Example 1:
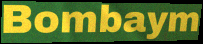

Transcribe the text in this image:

Bombaym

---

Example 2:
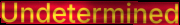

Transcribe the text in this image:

Undetermined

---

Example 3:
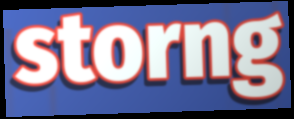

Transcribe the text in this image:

storng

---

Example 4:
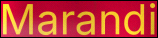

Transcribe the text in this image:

Marandi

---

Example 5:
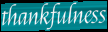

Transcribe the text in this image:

thankfulness